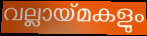
വല്ലായ്മകളും